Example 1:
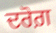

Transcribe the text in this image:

ਦਰੋਗ਼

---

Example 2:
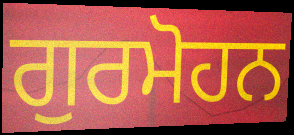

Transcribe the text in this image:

ਗੁਰਮੋਹਨ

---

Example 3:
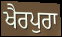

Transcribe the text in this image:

ਖੈਰਪੁਰਾ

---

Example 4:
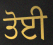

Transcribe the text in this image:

ਤੋਈ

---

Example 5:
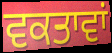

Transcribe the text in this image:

ਵਕਤਾਵਾਂ